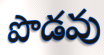
పొడవు